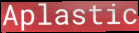
Aplastic